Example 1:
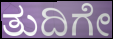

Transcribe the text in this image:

ತುದಿಗೇ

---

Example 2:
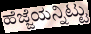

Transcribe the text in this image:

ಹೆಜ್ಜೆಯನ್ನಿಟ್ಟು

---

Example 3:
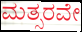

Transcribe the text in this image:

ಮತ್ಸರವೇ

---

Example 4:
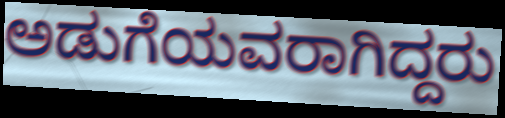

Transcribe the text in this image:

ಅಡುಗೆಯವರಾಗಿದ್ದರು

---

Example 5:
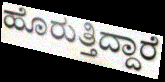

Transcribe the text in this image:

ಹೊರುತ್ತಿದ್ದಾರೆ